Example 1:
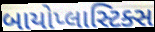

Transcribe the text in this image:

બાયોપ્લાસ્ટિક્સ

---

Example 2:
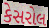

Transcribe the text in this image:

કેસરોલ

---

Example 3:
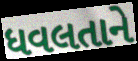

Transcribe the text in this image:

ધવલતાને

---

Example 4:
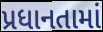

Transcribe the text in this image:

પ્રધાનતામાં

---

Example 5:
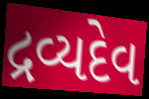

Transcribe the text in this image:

દ્રવ્યદેવ